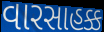
વારસાહક્ક